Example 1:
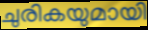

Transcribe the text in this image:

ചുരികയുമായി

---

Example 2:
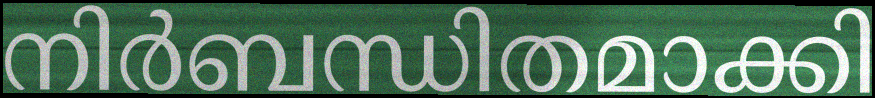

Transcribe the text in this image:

നിർബന്ധിതമാക്കി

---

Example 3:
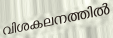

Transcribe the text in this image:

വിശകലനത്തിൽ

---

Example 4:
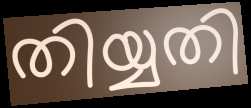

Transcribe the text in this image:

തിയ്യതി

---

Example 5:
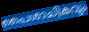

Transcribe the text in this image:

പൈശാചികവും